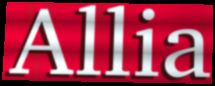
Allia